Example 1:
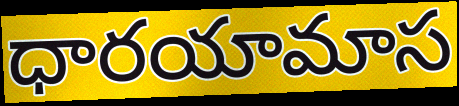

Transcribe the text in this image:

ధారయామాస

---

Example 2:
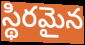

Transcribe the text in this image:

స్థిరమైన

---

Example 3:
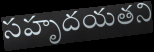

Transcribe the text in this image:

సహృదయతని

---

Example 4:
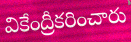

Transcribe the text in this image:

వికేంద్రీకరించారు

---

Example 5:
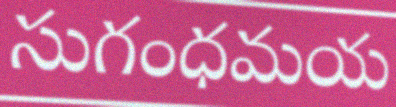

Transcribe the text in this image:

సుగంధమయ